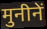
मुनीनें